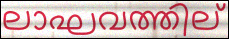
ലാഘവത്തില്